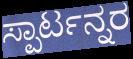
ಸ್ಪಾರ್ಟನ್ನರ